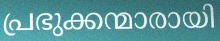
പ്രഭുക്കന്മാരായി